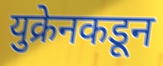
युक्रेनकडून